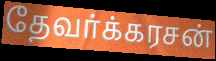
தேவர்க்கரசன்